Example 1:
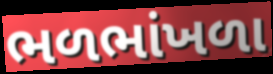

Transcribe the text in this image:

ભળભાંખળા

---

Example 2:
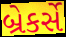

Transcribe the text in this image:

બ્રેકર્સે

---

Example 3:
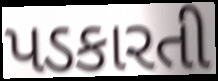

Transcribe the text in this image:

પડકારતી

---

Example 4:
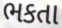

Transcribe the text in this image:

ભકતા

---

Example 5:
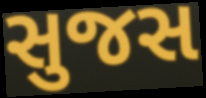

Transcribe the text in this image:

સુજસ